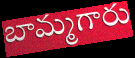
బామ్మగారు